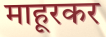
माहूरकर